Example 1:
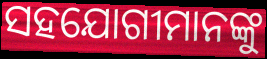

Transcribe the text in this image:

ସହଯୋଗୀମାନଙ୍କୁ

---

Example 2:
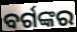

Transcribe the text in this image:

ବର୍ଗଙ୍କର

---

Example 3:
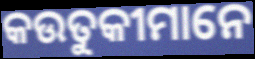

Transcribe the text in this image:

କଉତୁକୀମାନେ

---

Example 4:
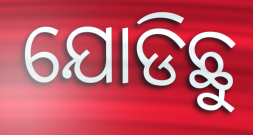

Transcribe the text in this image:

ଯୋଡିଛୁ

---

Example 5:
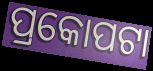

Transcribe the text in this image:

ପ୍ରକୋପଟା